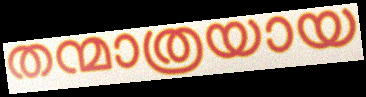
തന്മാത്രയായ